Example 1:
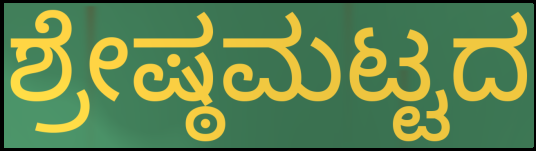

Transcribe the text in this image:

ಶ್ರೇಷ್ಠಮಟ್ಟದ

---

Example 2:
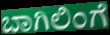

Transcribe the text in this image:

ಬಾಗಿಲಿಂಗೆ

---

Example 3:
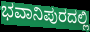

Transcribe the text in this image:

ಭವಾನಿಪುರದಲ್ಲಿ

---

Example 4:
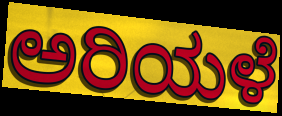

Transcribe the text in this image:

ಅರಿಯಳೆ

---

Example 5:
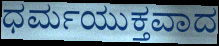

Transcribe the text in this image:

ಧರ್ಮಯುಕ್ತವಾದ